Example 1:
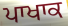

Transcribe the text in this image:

ਪਾਖਾਕ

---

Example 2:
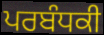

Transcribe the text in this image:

ਪਰਬੰਧਕੀ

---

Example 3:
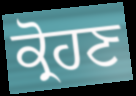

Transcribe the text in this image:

ਕ੍ਰੋਹਣ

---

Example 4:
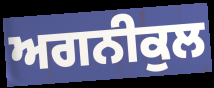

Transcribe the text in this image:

ਅਗਨੀਕੁਲ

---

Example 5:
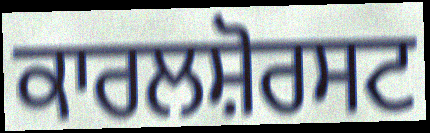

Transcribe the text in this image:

ਕਾਰਲਸ਼ੋਰਸਟ